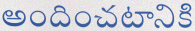
అందించటానికి